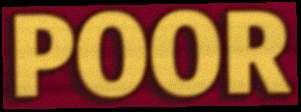
POOR